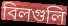
বিলগুলি